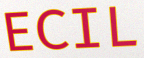
ECIL